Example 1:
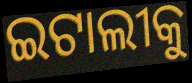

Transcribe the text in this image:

ଇଟାଲୀକୁ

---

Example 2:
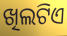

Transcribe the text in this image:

ଖିଲଟିଏ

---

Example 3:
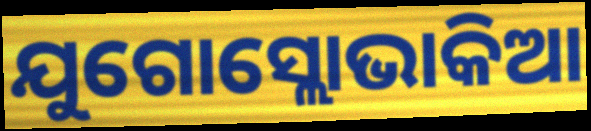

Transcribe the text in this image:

ଯୁଗୋସ୍ଲୋଭାକିଆ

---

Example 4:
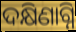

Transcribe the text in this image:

ଦକ୍ଷିଣାଗ୍ନି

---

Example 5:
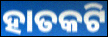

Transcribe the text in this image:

ହାତକଟି